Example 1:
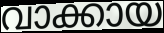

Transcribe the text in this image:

വാക്കായ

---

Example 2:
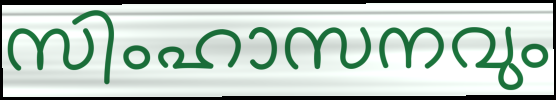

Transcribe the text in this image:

സിംഹാസനവും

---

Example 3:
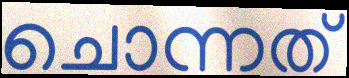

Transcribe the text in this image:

ചൊന്നത്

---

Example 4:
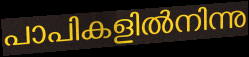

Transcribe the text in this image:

പാപികളിൽനിന്നു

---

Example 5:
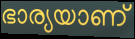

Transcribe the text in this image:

ഭാര്യയാണ്